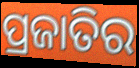
ପ୍ରଜାତିର